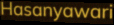
Hasanyawari